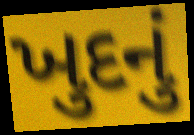
ખુદનું